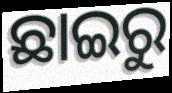
ଛାଇରୁ